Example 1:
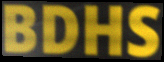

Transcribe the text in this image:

BDHS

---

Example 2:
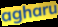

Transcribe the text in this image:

agharu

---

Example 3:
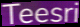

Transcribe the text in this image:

Teesri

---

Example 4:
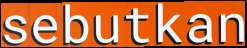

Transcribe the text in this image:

sebutkan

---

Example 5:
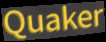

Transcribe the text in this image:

Quaker